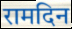
रामदिन